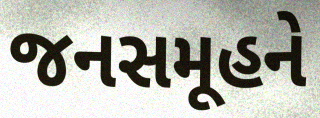
જનસમૂહને